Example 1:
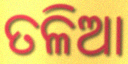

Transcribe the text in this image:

ତଳିଆ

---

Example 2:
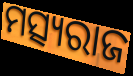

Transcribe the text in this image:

ମତ୍ସ୍ୟରାଜ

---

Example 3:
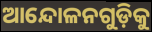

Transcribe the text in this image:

ଆନ୍ଦୋଳନଗୁଡ଼ିକୁ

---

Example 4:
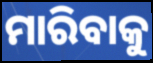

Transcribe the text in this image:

ମାରିବାକୁ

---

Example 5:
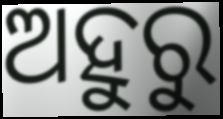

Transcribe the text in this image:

ଅହୁରୁ